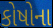
કોષોના